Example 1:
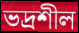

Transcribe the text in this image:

ভদ্রশীল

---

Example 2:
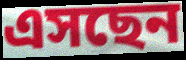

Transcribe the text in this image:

এসছেন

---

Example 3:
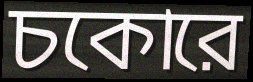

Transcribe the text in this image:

চকোরে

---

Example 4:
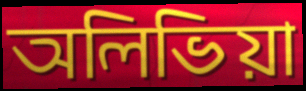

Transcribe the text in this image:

অলিভিয়া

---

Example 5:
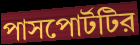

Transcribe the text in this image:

পাসপোর্টটির